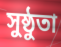
সুষ্ঠুতা